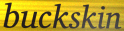
buckskin